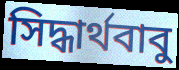
সিদ্ধার্থবাবু